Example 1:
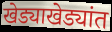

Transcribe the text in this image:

खेड्याखेड्यांत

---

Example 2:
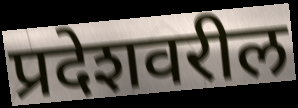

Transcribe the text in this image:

प्रदेशवरील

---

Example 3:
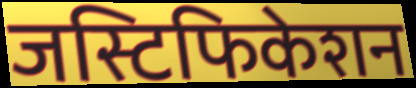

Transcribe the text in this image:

जस्टिफिकेशन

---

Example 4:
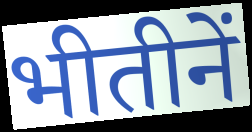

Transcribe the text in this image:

भीतीनें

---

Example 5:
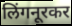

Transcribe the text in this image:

लिंगनूरकर